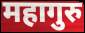
महागुरु